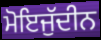
ਮੋਇਜੁੱਦੀਨ